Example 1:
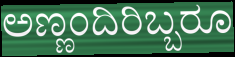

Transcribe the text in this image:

ಅಣ್ಣಂದಿರಿಬ್ಬರೂ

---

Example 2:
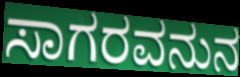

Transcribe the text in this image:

ಸಾಗರವನುನ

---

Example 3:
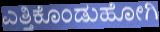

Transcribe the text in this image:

ಎತ್ತಿಕೊಂಡುಹೋಗಿ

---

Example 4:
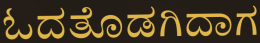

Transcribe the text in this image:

ಓದತೊಡಗಿದಾಗ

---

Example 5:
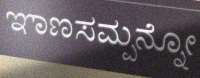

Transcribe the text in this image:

ಞಾಣಸಮ್ಪನ್ನೋ